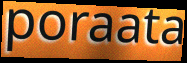
poraata